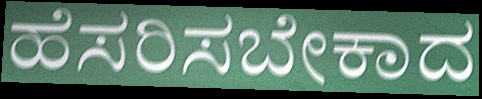
ಹೆಸರಿಸಬೇಕಾದ